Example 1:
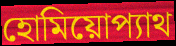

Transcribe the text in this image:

হোমিয়োপ্যাথ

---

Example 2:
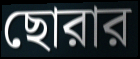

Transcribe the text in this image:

ছোরার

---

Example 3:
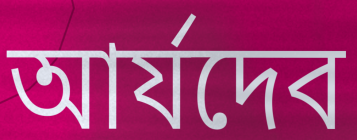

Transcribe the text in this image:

আর্যদেব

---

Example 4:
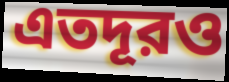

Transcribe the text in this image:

এতদূরও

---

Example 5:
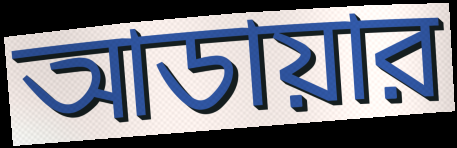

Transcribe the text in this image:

আডায়ার